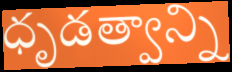
ధృడత్వాన్ని